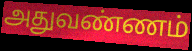
அதுவண்ணம்